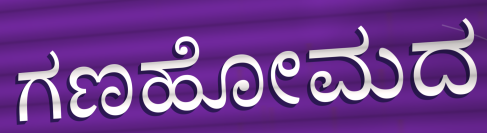
ಗಣಹೋಮದ